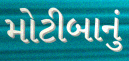
મોટીબાનું